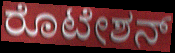
ರೊಟೇಶನ್